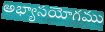
అభ్యాసయోగము